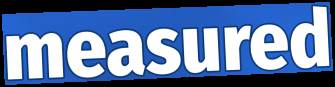
measured